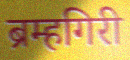
ब्रम्हगिरी